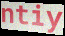
ntiy